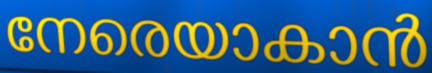
നേരെയാകാൻ